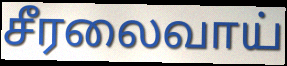
சீரலைவாய்